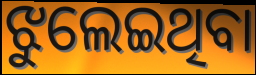
ଝୁଲେଇଥିବା